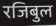
रजिबुल